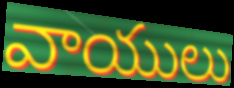
వాయులు